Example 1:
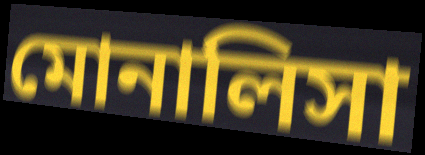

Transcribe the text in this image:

মোনালিসা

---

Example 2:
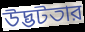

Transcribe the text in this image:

উদ্ভটতার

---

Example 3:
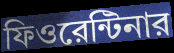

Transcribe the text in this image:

ফিওরেন্টিনার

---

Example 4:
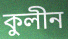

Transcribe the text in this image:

কুলীন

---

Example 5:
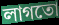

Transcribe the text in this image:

লাগতো